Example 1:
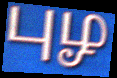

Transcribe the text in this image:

புழ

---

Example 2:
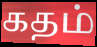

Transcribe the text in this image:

கதம்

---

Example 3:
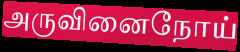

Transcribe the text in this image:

அருவினைநோய்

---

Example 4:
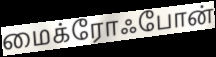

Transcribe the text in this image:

மைக்ரோஃபோன்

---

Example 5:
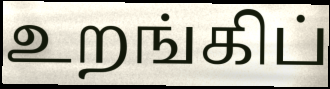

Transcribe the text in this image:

உறங்கிப்